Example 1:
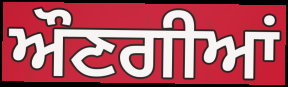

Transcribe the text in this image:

ਔਣਗੀਆਂ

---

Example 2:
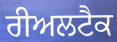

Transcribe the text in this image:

ਰੀਅਲਟੈਕ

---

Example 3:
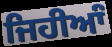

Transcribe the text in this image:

ਜਿਹੀਆੰ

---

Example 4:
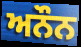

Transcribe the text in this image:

ਅਨੌਨ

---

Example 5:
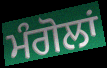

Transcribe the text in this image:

ਮੰਗੋਲਾਂ